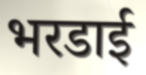
भरडाई